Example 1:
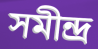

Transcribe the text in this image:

সমীন্দ্ৰ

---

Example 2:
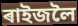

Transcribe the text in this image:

ৰাইজলৈ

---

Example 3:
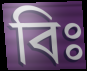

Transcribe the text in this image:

বিঃ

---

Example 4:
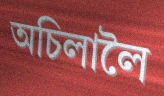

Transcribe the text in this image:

অচিলালৈ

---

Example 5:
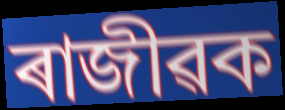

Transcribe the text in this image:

ৰাজীৱক